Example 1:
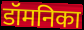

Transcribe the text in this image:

डॉमनिका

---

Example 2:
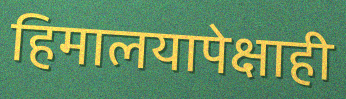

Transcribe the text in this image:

हिमालयापेक्षाही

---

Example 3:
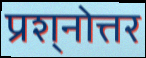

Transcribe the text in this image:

प्रश्नोत्तर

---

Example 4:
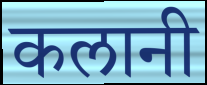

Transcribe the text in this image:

कलानी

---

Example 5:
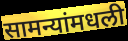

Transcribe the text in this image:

सामन्यांमधली